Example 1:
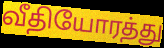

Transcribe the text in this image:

வீதியோரத்து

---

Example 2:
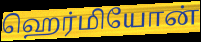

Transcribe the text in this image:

ஹெர்மியோன்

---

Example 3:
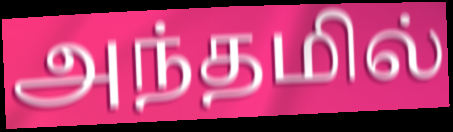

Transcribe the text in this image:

அந்தமில்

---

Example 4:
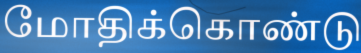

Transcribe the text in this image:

மோதிக்கொண்டு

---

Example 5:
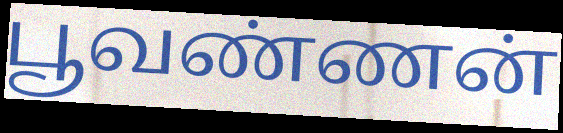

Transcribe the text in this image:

பூவண்ணன்